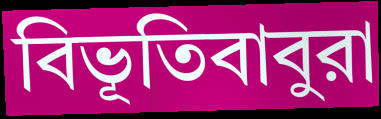
বিভূতিবাবুরা